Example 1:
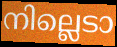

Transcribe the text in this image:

നില്ലെടാ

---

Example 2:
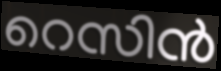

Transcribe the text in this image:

റെസിൻ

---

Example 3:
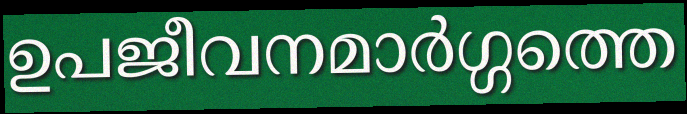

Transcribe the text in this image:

ഉപജീവനമാർഗ്ഗത്തെ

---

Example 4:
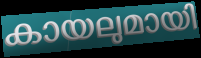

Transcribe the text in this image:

കായലുമായി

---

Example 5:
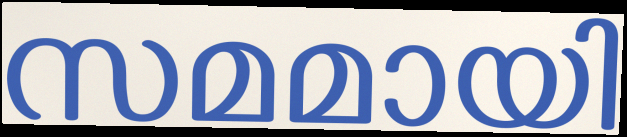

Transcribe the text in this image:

സമമായി